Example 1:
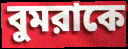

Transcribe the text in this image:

বুমরাকে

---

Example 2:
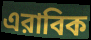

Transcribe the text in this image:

এরাবিক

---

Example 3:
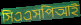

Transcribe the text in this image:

সিএএসপিআই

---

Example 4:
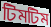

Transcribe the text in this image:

টিমটিম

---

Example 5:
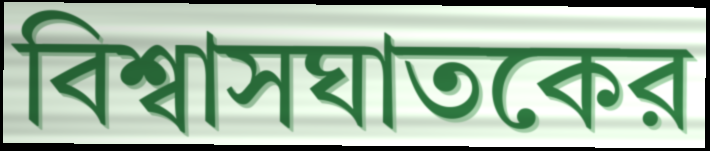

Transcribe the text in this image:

বিশ্বাসঘাতকের